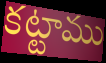
కట్టాము